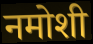
नमोशी